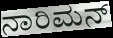
ನಾರಿಮನ್